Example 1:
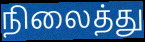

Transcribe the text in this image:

நிலைத்து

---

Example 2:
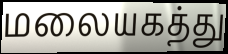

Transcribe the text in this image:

மலையகத்து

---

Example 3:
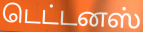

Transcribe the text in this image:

டெட்டனஸ்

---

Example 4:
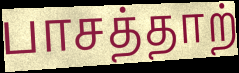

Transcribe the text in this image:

பாசத்தாற்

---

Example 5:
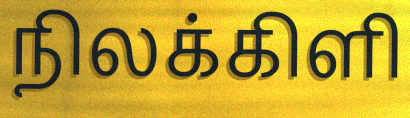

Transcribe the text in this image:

நிலக்கிளி